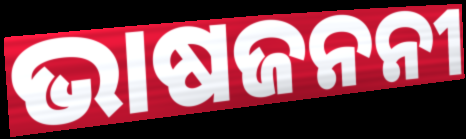
ଭାଷଜନନୀ